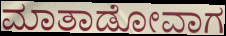
ಮಾತಾಡೋವಾಗ